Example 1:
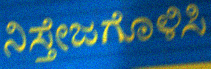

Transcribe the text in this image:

ನಿಸ್ತೇಜಗೊಳಿಸಿ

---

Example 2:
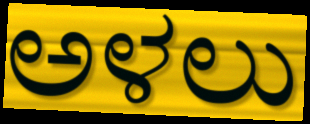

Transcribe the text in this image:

ಅಳಲು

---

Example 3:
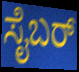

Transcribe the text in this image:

ಸೈಬರ್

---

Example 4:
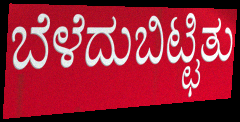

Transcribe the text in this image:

ಬೆಳೆದುಬಿಟ್ಟಿತು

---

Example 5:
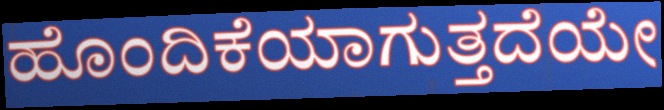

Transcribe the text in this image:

ಹೊಂದಿಕೆಯಾಗುತ್ತದೆಯೇ